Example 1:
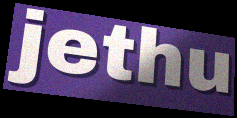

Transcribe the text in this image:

jethu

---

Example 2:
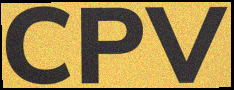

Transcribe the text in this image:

CPV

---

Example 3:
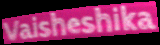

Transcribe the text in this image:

Vaisheshika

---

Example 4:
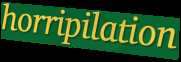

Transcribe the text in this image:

horripilation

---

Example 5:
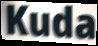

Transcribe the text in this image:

Kuda